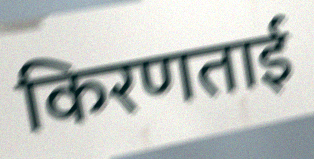
किरणताई